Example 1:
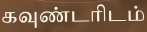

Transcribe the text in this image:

கவுண்டரிடம்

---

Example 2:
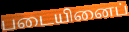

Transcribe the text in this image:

படையினைப்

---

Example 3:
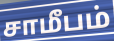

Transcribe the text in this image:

சாமீபம்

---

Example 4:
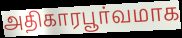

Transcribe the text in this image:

அதிகாரபூர்வமாக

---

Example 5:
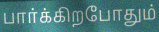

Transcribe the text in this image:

பார்க்கிறபோதும்